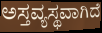
ಅಸ್ತವ್ಯಸ್ಥವಾಗಿದೆ